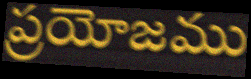
ప్రయోజము